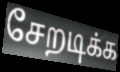
சேறடிக்க